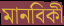
মানবিকী